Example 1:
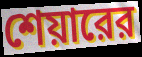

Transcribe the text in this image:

শেয়ারের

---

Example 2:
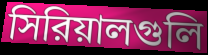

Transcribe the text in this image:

সিরিয়ালগুলি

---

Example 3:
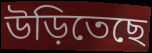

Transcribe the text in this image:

উড়িতেছে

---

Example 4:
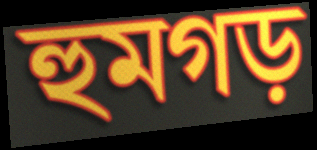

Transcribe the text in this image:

হুমগড়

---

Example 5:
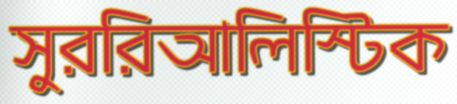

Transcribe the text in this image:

সুররিআলিস্টিক